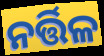
ନର୍ତ୍ତିଳ